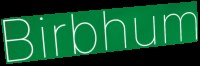
Birbhum